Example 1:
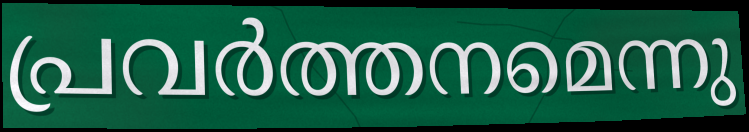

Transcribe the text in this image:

പ്രവർത്തനമെന്നു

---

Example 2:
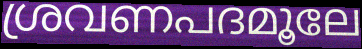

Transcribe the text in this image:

ശ്രവണപദമൂലേ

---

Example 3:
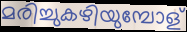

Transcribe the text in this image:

മരിച്ചുകഴിയുമ്പോള്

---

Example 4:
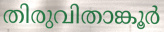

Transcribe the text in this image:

തിരുവിതാങ്കൂർ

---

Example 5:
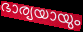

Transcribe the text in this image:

ഭാര്യയായും